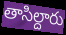
తాసిల్దారు